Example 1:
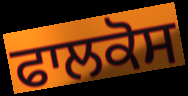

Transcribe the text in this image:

ਫਾਲਕੋਸ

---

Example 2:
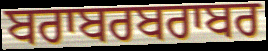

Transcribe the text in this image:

ਬਰਾਬਰਬਰਾਬਰ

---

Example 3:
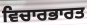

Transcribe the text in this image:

ਵਿਚਾਰਭਾਰਤ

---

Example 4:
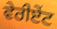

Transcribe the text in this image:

ਵੇਰੀਏਂਟ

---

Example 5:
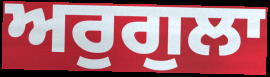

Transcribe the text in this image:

ਅਰੁਗੁਲਾ